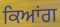
ਕਿਆਂਗ